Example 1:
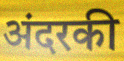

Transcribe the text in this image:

अंदरकी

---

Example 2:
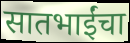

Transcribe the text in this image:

सातभाईंचा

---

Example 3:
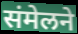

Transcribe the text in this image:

संमेलने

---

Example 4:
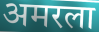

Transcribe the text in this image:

अमरला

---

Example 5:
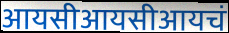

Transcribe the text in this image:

आयसीआयसीआयचं